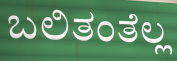
ಬಲಿತಂತೆಲ್ಲ